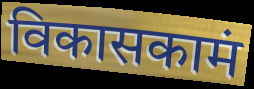
विकासकामं